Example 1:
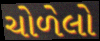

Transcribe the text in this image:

ચોળેલો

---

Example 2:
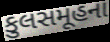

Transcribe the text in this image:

કુલસમૂહના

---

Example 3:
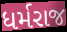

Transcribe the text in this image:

ધર્મરાજ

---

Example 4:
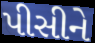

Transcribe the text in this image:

પીસીને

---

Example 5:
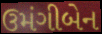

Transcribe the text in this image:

ઉમંગીબેન